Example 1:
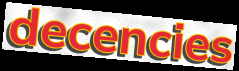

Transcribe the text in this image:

decencies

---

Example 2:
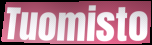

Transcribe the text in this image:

Tuomisto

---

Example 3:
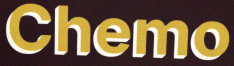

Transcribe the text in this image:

Chemo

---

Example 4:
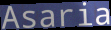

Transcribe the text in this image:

Asaria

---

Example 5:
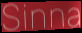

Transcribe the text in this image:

Sinna